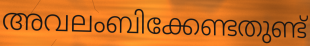
അവലംബിക്കേണ്ടതുണ്ട്